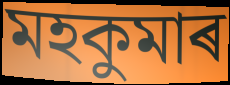
মহকুমাৰ